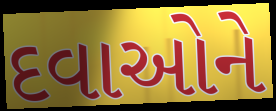
દવાઓને